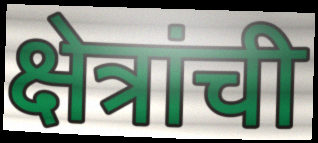
क्षेत्रांची